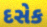
દસેક